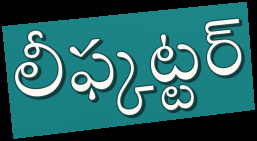
లీఫ్కట్టర్